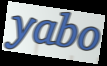
yabo